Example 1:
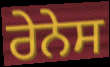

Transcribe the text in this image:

ਰੇਨੇਸ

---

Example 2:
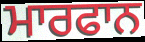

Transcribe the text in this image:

ਮਾਰਫਾਨ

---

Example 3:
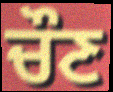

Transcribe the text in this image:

ਚੌਣ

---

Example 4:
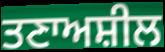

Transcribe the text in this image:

ਤਣਾਅਸ਼ੀਲ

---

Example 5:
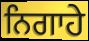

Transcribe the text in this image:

ਨਿਗਾਹੇ